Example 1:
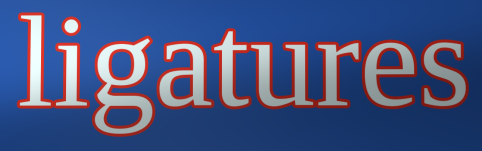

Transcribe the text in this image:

ligatures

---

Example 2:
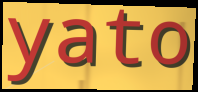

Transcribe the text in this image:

yato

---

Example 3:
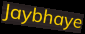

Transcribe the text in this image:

Jaybhaye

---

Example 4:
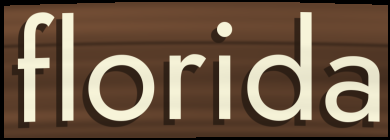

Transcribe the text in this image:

florida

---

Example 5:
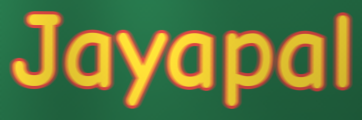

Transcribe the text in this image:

Jayapal